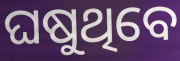
ଘଷୁଥିବେ